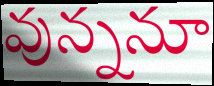
వున్ననూ